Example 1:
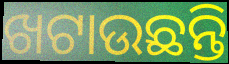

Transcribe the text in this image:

ଖଟାଉଛନ୍ତି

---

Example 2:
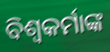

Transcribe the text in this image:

ବିଶ୍ୱକର୍ମାଙ୍କ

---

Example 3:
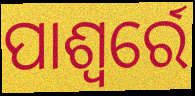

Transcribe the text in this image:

ପାଶ୍ୱର୍ରେ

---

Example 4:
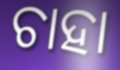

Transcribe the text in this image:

ଚାହା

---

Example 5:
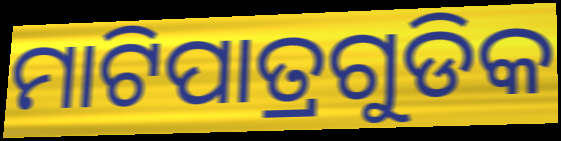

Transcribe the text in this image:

ମାଟିପାତ୍ରଗୁଡିକ